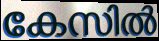
കേസിൽ